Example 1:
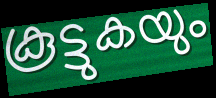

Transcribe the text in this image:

കൂട്ടുകയും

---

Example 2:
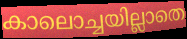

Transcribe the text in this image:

കാലൊച്ചയില്ലാതെ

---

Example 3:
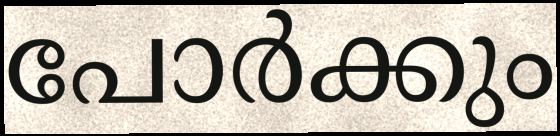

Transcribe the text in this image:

പോർക്കും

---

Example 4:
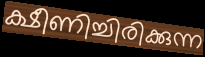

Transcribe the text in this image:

ക്ഷീണിച്ചിരിക്കുന്ന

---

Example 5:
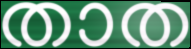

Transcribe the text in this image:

താത